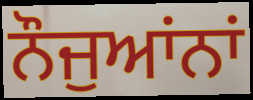
ਨੌਜੁਆਂਨਾਂ